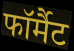
फॉर्मैट